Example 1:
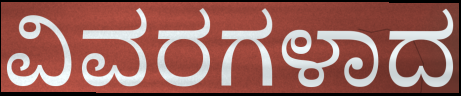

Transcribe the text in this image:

ವಿವರಗಳಾದ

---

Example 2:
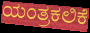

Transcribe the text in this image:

ಯಂತ್ರಕಲಿಕೆ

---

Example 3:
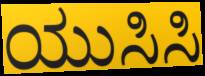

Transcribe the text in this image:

ಯುಸಿಸಿ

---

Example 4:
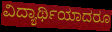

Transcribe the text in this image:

ವಿದ್ಯಾರ್ಥಿಯಾದರೂ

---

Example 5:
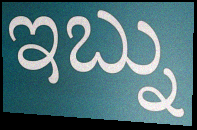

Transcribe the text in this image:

ಇಬ್ನು